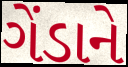
ગેંડાને